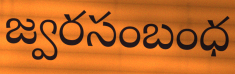
జ్వరసంబంధ